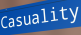
Casuality